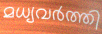
മധ്യവർത്തി